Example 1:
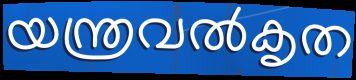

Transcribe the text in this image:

യന്ത്രവൽകൃത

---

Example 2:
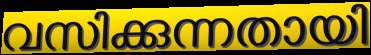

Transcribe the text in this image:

വസിക്കുന്നതായി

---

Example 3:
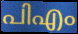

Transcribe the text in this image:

പിഎം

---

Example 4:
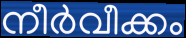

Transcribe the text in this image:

നീർവീക്കം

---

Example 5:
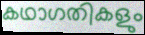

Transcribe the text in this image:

കഥാഗതികളും